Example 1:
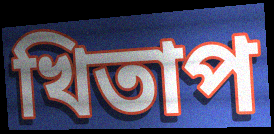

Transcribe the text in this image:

খিতাপ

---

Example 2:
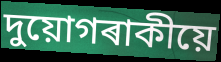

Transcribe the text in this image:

দুয়োগৰাকীয়ে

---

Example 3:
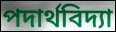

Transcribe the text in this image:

পদাৰ্থবিদ্যা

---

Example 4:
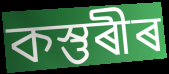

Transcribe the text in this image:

কস্তুৰীৰ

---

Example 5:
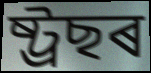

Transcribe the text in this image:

ষ্ট্ৰছৰ